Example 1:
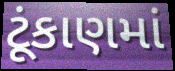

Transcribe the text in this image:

ટૂંકાણમાં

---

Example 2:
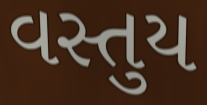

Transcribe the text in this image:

વસ્તુય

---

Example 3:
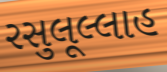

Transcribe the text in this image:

રસુલૂલ્લાહ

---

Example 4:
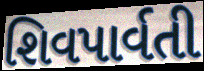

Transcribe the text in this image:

શિવપાર્વતી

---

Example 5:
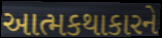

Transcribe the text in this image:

આત્મકથાકારને